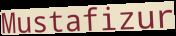
Mustafizur